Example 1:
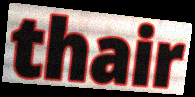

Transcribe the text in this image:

thair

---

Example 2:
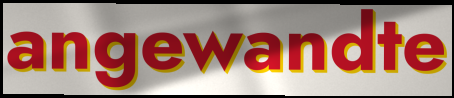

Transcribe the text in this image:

angewandte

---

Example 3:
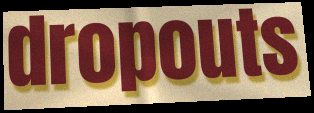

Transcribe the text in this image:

dropouts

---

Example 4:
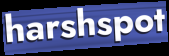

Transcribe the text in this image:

harshspot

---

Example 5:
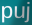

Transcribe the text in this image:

puj